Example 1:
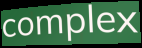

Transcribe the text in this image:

complex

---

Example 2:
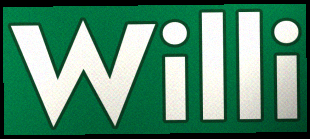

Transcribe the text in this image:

Willi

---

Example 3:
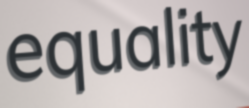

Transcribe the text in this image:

equality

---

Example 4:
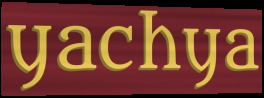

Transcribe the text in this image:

yachya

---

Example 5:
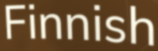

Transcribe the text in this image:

Finnish